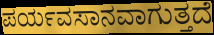
ಪರ್ಯವಸಾನವಾಗುತ್ತದೆ